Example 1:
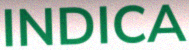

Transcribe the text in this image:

INDICA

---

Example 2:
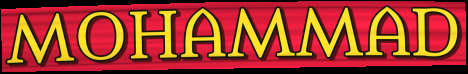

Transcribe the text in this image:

MOHAMMAD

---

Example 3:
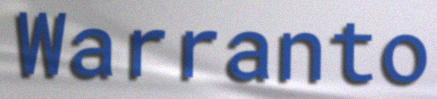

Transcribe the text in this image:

Warranto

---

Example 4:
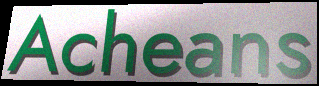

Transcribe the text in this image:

Acheans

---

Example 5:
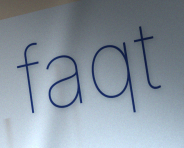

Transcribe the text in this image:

faqt